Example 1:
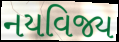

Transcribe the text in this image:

નયવિજ્ય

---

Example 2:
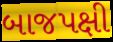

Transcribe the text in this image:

બાજપક્ષી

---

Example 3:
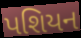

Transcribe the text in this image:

પશિયન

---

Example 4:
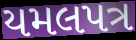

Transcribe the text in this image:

યમલપત્ર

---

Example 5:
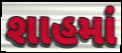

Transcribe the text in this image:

શાહમાં